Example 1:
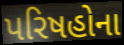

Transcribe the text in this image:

પરિષહોના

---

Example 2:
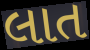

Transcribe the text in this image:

લાત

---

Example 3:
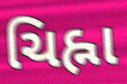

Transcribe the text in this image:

ચિહ્ના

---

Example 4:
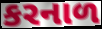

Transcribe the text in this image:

કરનાળ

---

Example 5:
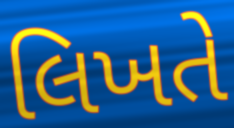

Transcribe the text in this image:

લિખતે